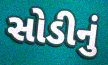
સોડીનું